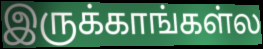
இருக்காங்கள்ல